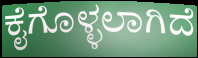
ಕೈಗೊಳ್ಳಲಾಗಿದೆ